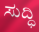
ಸುದ್ಧಿ